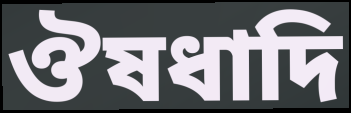
ঔষধাদি